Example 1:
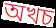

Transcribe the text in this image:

অখচ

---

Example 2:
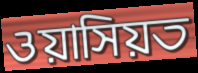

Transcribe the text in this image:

ওয়াসিয়ত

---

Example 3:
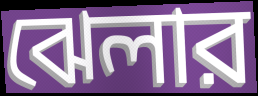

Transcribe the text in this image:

ঝেলার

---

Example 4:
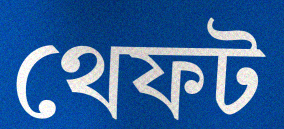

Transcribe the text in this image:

থেফট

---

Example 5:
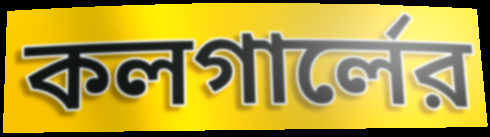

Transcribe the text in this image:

কলগার্লের